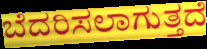
ಬೆದರಿಸಲಾಗುತ್ತದೆ